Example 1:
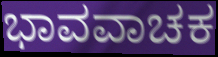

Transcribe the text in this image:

ಭಾವವಾಚಕ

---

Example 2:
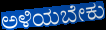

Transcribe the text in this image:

ಅಳಿಯಬೇಕು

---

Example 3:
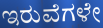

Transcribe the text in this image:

ಇರುವೆಗಳೇ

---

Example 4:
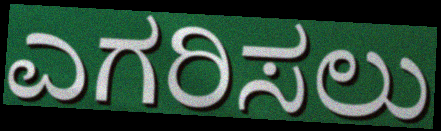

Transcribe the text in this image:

ಎಗರಿಸಲು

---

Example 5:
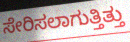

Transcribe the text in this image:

ಸೇರಿಸಲಾಗುತ್ತಿತ್ತು